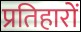
प्रतिहारों